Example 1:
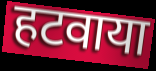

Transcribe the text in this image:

हटवाया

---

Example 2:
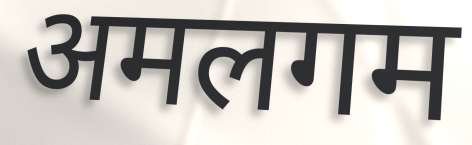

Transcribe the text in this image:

अमलगम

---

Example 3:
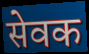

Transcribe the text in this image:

सेवक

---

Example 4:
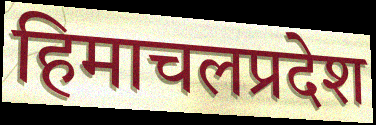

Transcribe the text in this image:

हिमाचलप्रदेश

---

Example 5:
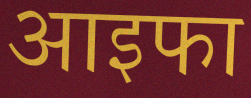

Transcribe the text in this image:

आइफा